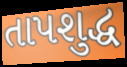
તાપશુદ્ધ